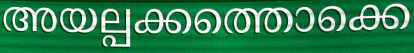
അയല്പക്കത്തൊക്കെ